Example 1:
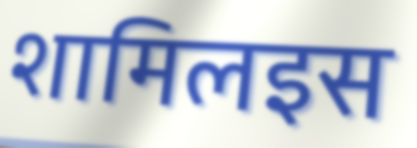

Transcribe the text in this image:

शामिलइस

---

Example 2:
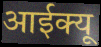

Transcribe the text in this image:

आईक्‍यू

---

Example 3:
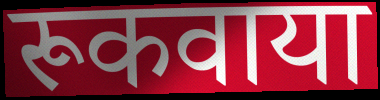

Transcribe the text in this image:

रूकवाया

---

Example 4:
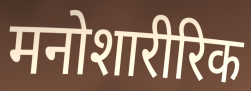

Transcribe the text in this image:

मनोशारीरिक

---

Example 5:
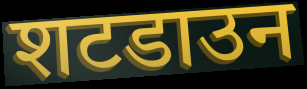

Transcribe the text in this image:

शटडाउन